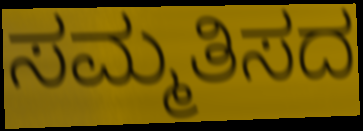
ಸಮ್ಮತಿಸದ